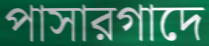
পাসারগাদে